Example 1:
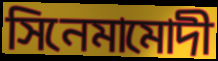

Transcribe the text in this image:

সিনেমামোদী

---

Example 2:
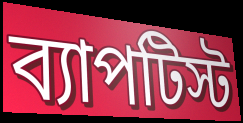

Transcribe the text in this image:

ব্যাপটিস্ট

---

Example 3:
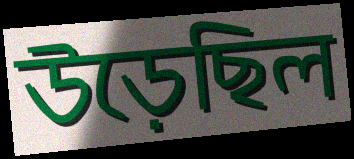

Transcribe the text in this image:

উড়েছিল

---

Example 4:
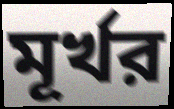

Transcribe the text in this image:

মূর্খর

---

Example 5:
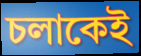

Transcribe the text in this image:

চলাকেই